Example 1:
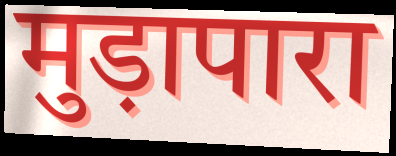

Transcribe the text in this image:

मुड़ापारा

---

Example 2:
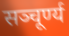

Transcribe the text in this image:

सञ्चूर्ण्य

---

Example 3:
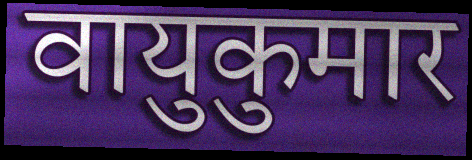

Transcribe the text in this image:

वायुकुमार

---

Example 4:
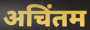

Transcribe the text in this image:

अचिंतम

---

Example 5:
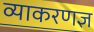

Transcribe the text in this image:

व्याकरणज्ञ